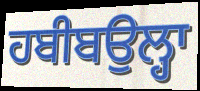
ਹਬੀਬਉਲ੍ਹਾ